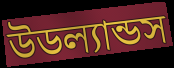
উডল্যান্ডস